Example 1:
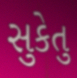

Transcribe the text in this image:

સુકેતુ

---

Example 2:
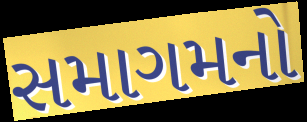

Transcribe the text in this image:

સમાગમનો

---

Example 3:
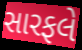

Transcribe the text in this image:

સારફલે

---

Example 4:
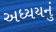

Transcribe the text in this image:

અધ્યયનું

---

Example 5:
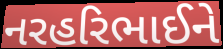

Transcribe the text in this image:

નરહરિભાઈને